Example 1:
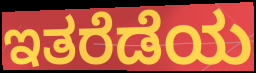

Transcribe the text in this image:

ಇತರೆಡೆಯ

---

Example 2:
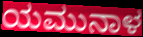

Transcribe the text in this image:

ಯಮುನಾಳ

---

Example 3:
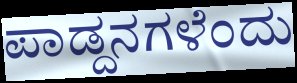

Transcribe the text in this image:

ಪಾಡ್ದನಗಳೆಂದು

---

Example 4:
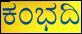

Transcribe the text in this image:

ಕಂಭದಿ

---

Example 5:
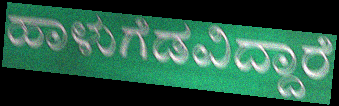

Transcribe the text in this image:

ಹಾಳುಗೆಡವಿದ್ದಾರೆ